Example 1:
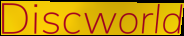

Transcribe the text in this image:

Discworld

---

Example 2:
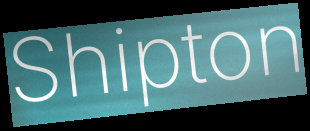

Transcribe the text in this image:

Shipton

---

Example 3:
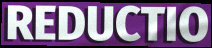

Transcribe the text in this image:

REDUCTIO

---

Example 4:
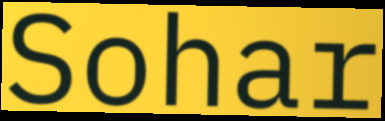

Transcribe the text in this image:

Sohar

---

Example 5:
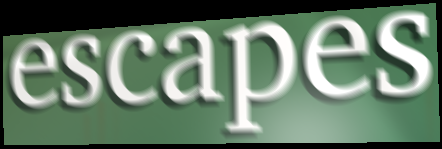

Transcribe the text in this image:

escapes